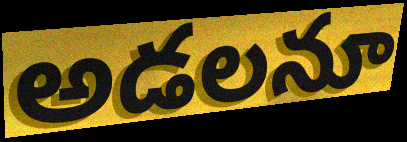
అడలనూ